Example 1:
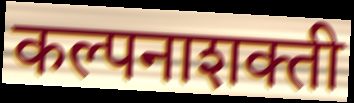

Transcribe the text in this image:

कल्पनाशक्ती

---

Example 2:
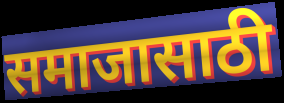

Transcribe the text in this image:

समाजासाठी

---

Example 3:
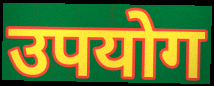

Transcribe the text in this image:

उपयोग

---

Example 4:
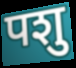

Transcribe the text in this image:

पशु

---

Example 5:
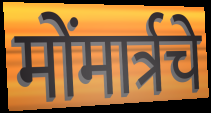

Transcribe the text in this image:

मोंमार्त्रचे